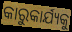
କାରୁକାର୍ଯ୍ୟକୁ